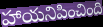
హాయనిపించింది